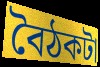
বৈঠকটা